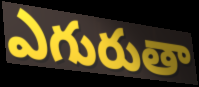
ఎగురుతా